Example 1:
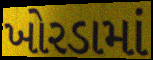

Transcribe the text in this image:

ખોરડામાં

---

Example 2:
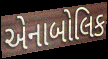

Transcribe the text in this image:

એનાબોલિક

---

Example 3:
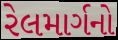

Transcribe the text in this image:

રેલમાર્ગનો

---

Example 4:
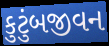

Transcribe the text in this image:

કુટુંબજીવન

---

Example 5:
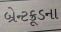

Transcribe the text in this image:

બ્રેન્ટક્રૂડના